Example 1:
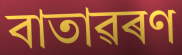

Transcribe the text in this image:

বাতাৱৰণ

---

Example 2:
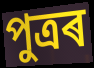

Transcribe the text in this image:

পুত্ৰৰ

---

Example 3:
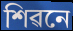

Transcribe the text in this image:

শিৱনে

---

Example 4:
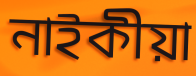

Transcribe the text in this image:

নাইকীয়া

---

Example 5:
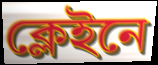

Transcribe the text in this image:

ক্লেইনে